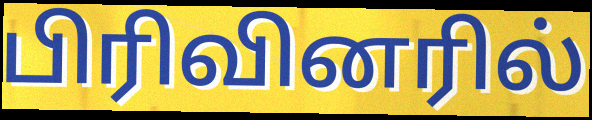
பிரிவினரில்